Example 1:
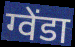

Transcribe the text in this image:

ग्वेंडा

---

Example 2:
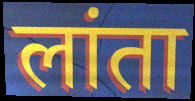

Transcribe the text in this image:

लांता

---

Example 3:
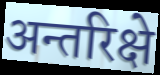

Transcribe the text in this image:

अन्तरिक्षे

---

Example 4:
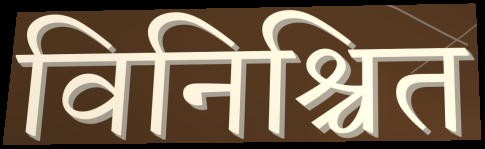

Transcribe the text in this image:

विनिश्चित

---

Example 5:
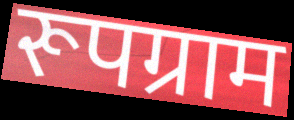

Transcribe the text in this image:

रूपग्राम